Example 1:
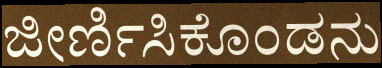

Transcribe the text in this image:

ಜೀರ್ಣಿಸಿಕೊಂಡನು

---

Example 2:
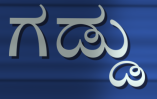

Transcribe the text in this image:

ಗಡ್ಡು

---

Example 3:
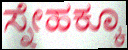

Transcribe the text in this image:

ಸ್ನೇಹಕ್ಕೂ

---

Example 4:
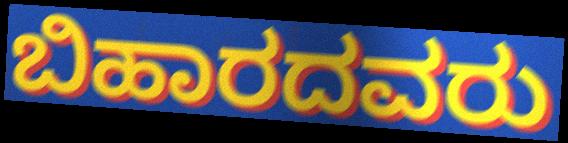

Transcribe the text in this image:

ಬಿಹಾರದವರು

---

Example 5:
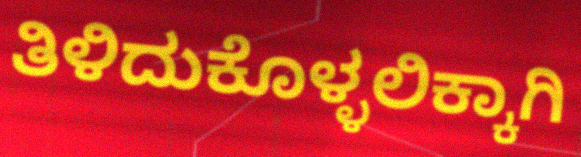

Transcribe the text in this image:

ತಿಳಿದುಕೊಳ್ಳಲಿಕ್ಕಾಗಿ